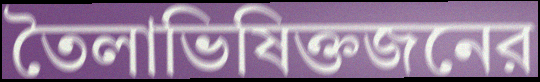
তৈলাভিষিক্তজনের